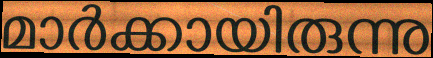
മാർക്കായിരുന്നു